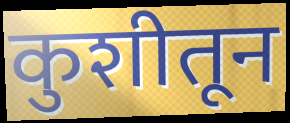
कुशीतून